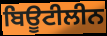
ਬਿਊਟੀਲੀਨ